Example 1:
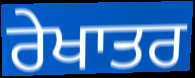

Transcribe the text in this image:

ਰੇਖਾਤਰ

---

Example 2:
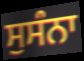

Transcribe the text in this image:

ਸੁਸੰਨਾ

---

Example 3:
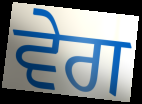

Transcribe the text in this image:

ਵੇਗ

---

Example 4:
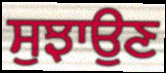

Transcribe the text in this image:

ਸੁਝਾਉਣ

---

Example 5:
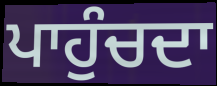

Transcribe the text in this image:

ਪਾਹੁੰਚਦਾ